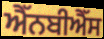
ਐੱਨਬੀਐੱਸ